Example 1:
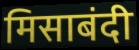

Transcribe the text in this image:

मिसाबंदी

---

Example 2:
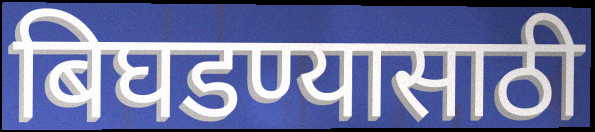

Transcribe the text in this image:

बिघडण्यासाठी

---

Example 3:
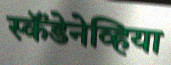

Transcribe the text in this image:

स्कॅंडेनेव्हिया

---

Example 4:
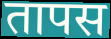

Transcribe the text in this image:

तापस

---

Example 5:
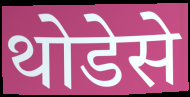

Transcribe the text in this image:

थोडेसे